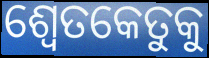
ଶ୍ୱେତକେତୁକୁ